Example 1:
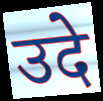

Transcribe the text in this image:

उदे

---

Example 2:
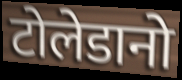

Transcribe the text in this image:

टोलेडानो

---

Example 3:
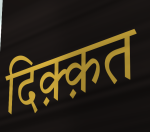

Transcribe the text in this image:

दिक़्क़त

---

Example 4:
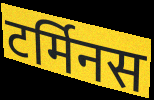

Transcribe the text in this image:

टर्मिनस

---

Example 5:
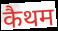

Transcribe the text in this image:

कैथम